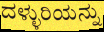
ದಳ್ಳುರಿಯನ್ನು